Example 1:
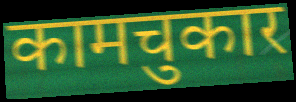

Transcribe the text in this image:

कामचुकार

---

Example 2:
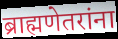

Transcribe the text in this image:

ब्राह्मणेतरांना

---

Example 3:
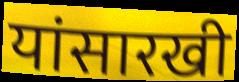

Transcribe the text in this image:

यांसारखी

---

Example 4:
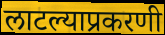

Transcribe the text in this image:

लाटल्याप्रकरणी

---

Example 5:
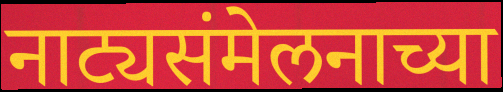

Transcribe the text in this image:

नाट्यसंमेलनाच्या